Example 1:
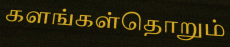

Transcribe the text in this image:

களங்கள்தொறும்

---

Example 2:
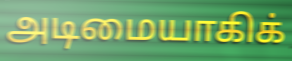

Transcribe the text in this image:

அடிமையாகிக்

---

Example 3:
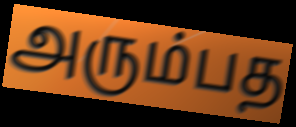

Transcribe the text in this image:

அரும்பத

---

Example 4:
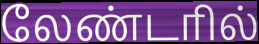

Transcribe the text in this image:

லேண்டரில்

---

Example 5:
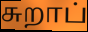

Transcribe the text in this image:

சுறாப்